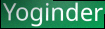
Yoginder